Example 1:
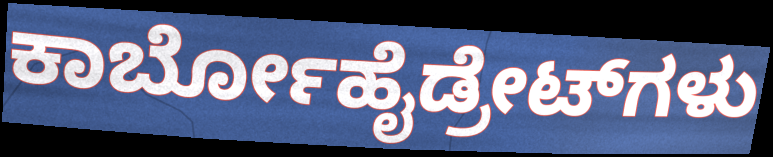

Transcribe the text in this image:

ಕಾರ್ಬೋಹೈಡ್ರೇಟ್‌ಗಳು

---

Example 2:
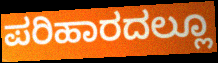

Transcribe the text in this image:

ಪರಿಹಾರದಲ್ಲೂ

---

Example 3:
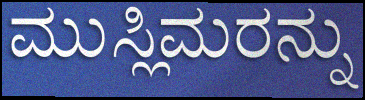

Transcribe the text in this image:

ಮುಸ್ಲಿಮರನ್ನು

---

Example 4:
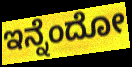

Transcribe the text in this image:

ಇನ್ನೆಂದೋ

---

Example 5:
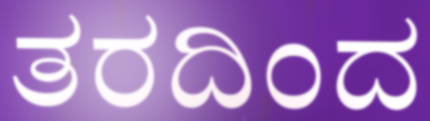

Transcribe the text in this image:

ತರದಿಂದ